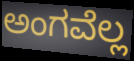
ಅಂಗವೆಲ್ಲ